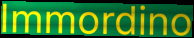
Immordino